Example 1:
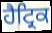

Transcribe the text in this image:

ਹੈਟ੍ਰਿਕ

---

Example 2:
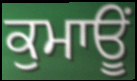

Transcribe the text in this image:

ਕੁਮਾਊਂ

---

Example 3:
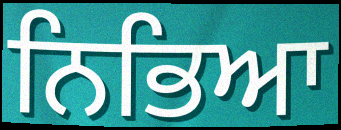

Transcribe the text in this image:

ਨਿਭਿਆ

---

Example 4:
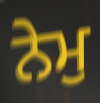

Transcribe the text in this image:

ਨੇਮੁ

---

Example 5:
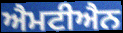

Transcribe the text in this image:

ਐਮਟੀਐਨ